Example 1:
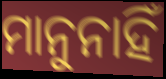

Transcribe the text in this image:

ମାନୁନାହିଁ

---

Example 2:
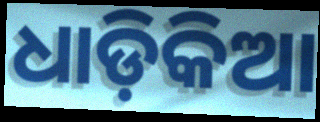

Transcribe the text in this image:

ଧାଡ଼ିକିଆ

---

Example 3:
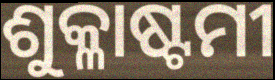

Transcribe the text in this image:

ଶୁକ୍ଳାଷ୍ଟମୀ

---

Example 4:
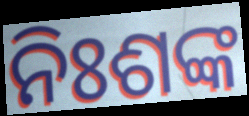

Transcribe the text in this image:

ନିଃଶଙ୍କ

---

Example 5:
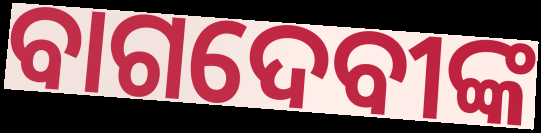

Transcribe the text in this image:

ବାଗଦେବୀଙ୍କ